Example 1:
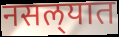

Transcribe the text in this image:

नसल्यात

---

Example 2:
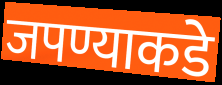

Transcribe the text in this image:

जपण्याकडे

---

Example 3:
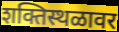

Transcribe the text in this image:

शक्तिस्थळावर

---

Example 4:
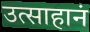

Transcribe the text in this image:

उत्साहानं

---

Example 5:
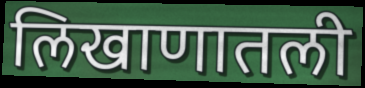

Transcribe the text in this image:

लिखाणातली